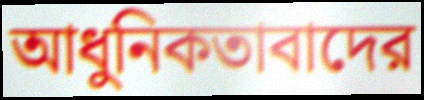
আধুনিকতাবাদের